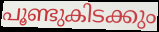
പൂണ്ടുകിടക്കും